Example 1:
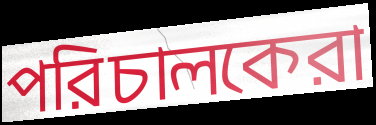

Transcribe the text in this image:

পরিচালকেরা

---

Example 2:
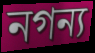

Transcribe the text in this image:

নগন্য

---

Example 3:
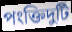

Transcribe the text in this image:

পংক্তিদুটি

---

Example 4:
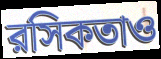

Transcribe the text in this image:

রসিকতাও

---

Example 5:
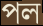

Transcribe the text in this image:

পল